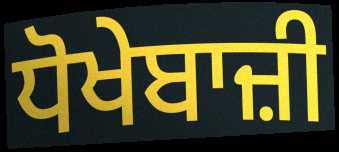
ਧੋਖੇਬਾਜ਼ੀ